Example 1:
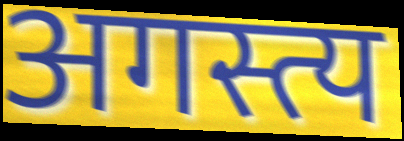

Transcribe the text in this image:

अगस्त्य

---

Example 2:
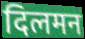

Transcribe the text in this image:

दिलमन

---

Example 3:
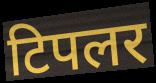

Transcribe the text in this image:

टिपलर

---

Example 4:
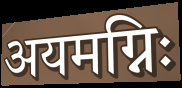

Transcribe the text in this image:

अयमग्निः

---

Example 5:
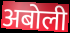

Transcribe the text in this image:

अबोली